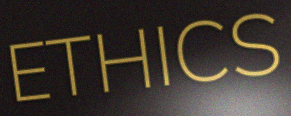
ETHICS